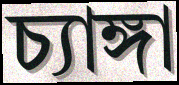
চ্যাঙ্গা